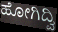
ಹೋಗಿದ್ವಿ